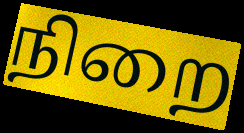
நிறை